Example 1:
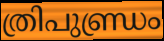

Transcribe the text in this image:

ത്രിപുണ്ഡ്രം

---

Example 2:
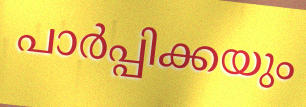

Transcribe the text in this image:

പാർപ്പിക്കയും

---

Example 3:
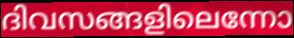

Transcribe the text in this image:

ദിവസങ്ങളിലെന്നോ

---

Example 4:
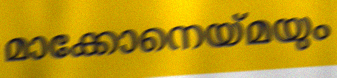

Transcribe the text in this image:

മാക്കോനെയ്മയും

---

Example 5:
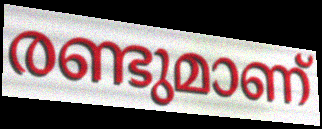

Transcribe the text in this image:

രണ്ടുമാണ്